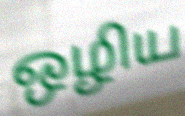
ஒழிய